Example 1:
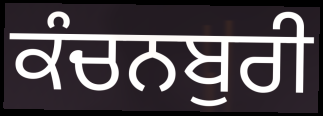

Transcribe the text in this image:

ਕੰਚਨਬੁਰੀ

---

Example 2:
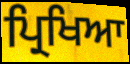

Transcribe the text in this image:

ਪ੍ਰਿਖਿਆ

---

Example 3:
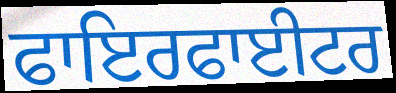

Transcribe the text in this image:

ਫਾਇਰਫਾਈਟਰ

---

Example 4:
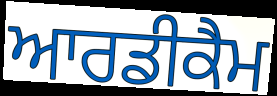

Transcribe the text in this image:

ਆਰਡੀਕੈਮ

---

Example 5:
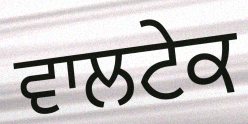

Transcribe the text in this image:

ਵਾਲਟੇਕ